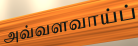
அவ்வளவாய்ப்